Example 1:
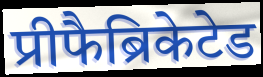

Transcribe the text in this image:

प्रीफैब्रिकेटेड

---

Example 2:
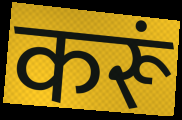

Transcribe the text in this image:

करूं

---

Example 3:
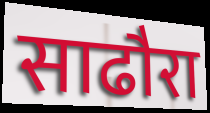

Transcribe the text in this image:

साढौरा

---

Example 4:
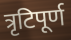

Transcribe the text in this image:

त्रृटिपूर्ण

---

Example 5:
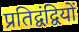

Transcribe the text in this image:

प्रतिद्वंद्वियों